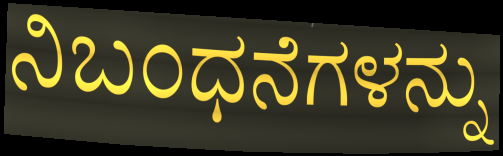
ನಿಬಂಧನೆಗಳನ್ನು